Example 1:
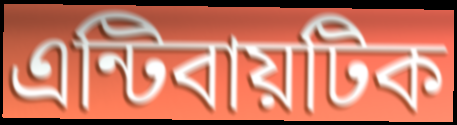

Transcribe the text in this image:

এন্টিবায়টিক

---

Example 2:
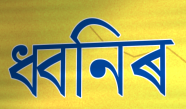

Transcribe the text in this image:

ধ্বনিৰ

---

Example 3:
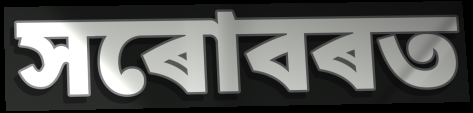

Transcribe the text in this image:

সৰোবৰত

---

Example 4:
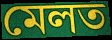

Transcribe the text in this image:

মেলত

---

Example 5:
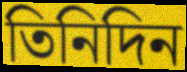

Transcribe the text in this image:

তিনিদিন